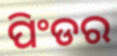
ପିଂଡର